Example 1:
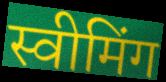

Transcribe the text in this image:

स्वीमिंग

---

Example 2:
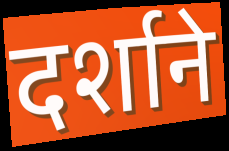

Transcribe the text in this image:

दर्शाने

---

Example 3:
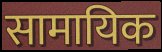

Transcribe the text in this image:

सामायिक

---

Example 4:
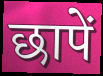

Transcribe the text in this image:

छापें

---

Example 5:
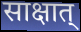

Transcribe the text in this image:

साक्षात्